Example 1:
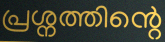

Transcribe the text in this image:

പ്രശ്നത്തിന്റെ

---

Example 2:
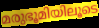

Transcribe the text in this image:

മരുഭൂമിയിലൂടെ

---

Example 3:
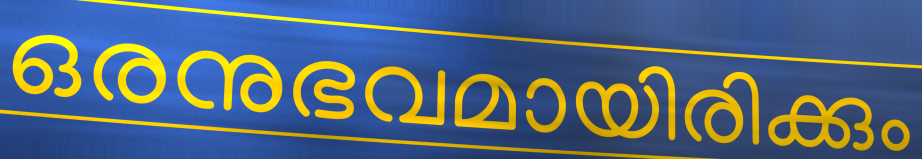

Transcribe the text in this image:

ഒരനുഭവമായിരിക്കും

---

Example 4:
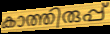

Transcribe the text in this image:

കാത്തിരുപ്പ്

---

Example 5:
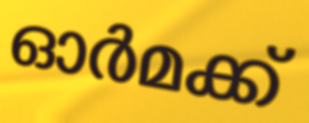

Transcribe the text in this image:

ഓർമക്ക്